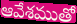
ఆవేశముతో